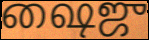
ஷைஜு